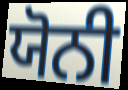
ਯੋਨੀ